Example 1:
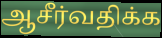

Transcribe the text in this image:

ஆசீர்வதிக்க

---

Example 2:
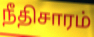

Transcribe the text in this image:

நீதிசாரம்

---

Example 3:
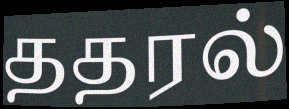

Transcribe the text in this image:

ததரல்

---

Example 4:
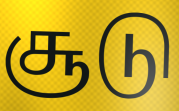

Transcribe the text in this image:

சூடு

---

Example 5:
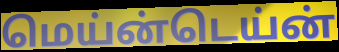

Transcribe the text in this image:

மெய்ன்டெய்ன்